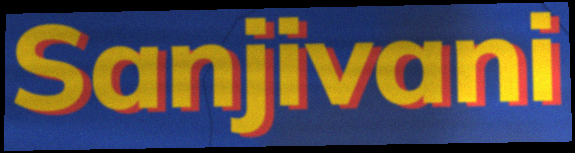
Sanjivani